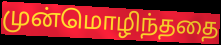
முன்மொழிந்ததை